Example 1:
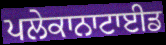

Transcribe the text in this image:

ਪਲੇਕਾਨਾਟਾਈਡ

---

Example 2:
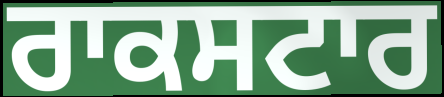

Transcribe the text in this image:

ਰਾਕਸਟਾਰ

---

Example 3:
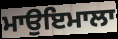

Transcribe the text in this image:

ਮਾਉਇਮਾਲਾ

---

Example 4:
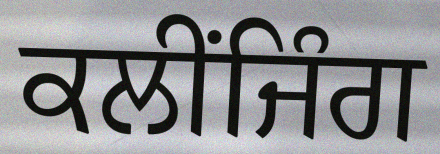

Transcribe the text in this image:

ਕਲੀਂਜਿੰਗ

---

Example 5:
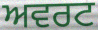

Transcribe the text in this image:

ਅਵਰਟ